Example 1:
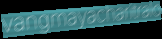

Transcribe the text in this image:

vangmayacharitralo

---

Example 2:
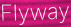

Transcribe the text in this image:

Flyway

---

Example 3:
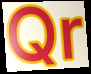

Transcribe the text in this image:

Qr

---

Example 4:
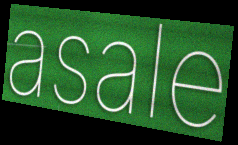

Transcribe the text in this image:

asale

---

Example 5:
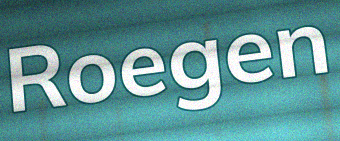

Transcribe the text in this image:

Roegen